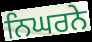
ਨਿਘਰਨੇ